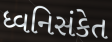
ધ્વનિસંકેત